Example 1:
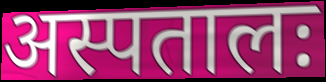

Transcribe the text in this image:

अस्पतालः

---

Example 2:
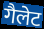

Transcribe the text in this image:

गैलेट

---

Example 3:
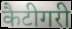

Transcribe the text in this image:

कैटीगरी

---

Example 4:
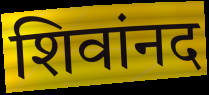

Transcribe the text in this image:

शिवांनद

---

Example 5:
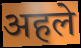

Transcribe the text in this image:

अहले